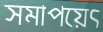
সমাপয়েৎ